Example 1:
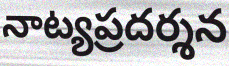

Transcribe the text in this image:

నాట్యప్రదర్శన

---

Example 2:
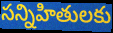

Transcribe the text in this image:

సన్నిహితులకు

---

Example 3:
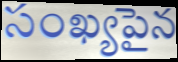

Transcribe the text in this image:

సంఖ్యపైన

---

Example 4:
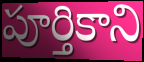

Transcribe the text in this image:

పూర్తికాని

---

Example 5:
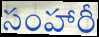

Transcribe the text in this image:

సంహారీ